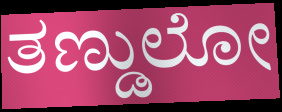
ತಣ್ಡುಲೋ